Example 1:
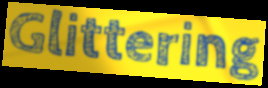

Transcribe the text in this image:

Glittering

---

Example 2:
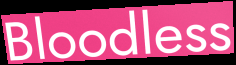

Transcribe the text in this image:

Bloodless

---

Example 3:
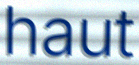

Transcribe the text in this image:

haut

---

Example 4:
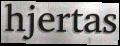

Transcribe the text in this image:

hjertas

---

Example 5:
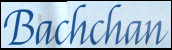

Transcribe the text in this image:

Bachchan